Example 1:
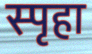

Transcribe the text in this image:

स्पृहा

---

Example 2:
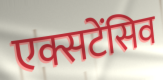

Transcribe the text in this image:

एक्सटेंसिव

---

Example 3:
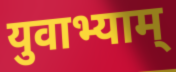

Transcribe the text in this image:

युवाभ्याम्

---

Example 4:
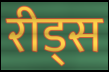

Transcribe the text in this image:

रीड्स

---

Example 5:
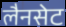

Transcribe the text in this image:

लैनसेट